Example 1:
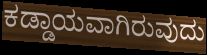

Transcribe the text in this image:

ಕಡ್ಡಾಯವಾಗಿರುವುದು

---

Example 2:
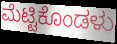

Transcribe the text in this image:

ಮೆಟ್ಟಿಕೊಂಡಳು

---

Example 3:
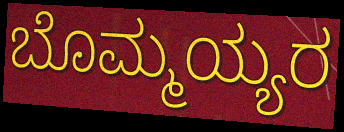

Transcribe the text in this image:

ಬೊಮ್ಮಯ್ಯರ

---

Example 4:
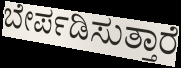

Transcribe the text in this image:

ಬೇರ್ಪಡಿಸುತ್ತಾರೆ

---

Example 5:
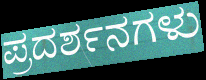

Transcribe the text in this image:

ಪ್ರದರ್ಶನಗಳು